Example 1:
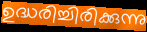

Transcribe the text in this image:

ഉദ്ധരിച്ചിരിക്കുന്നു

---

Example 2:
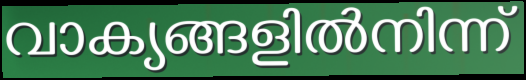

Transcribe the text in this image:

വാക്യങ്ങളിൽനിന്ന്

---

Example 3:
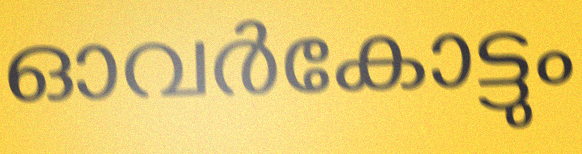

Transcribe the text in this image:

ഓവർകോട്ടും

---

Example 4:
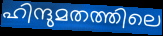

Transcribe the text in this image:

ഹിന്ദുമതത്തിലെ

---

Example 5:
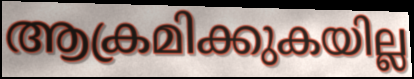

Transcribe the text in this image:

ആക്രമിക്കുകയില്ല